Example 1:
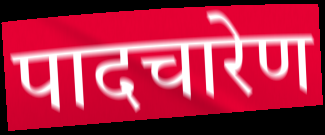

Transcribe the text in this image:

पादचारेण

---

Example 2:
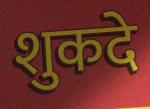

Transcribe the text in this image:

शुकदे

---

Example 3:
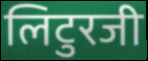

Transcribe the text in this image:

लिटुरजी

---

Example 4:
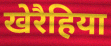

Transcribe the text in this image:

खेरैहिया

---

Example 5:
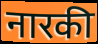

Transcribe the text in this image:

नारकी